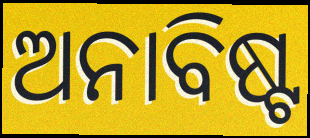
ଅନାବିଷ୍ଟ